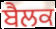
ਬੈਲਕ